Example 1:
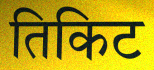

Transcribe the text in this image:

तिकिट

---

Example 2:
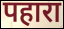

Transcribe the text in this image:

पहारा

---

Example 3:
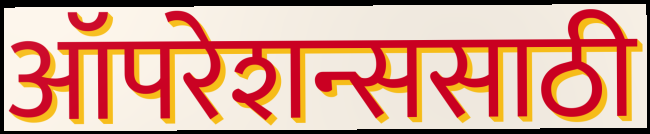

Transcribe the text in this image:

ऑपरेशन्ससाठी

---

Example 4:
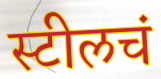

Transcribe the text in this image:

स्टीलचं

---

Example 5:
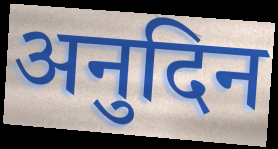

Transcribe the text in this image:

अनुदिन